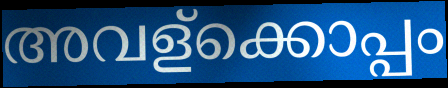
അവള്ക്കൊപ്പം